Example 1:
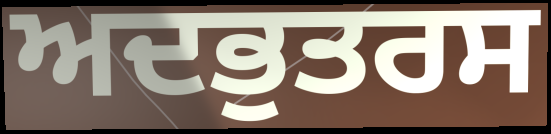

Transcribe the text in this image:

ਅਦਭੁਤਰਸ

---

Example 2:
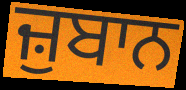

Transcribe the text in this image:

ਜ਼ੁਬਾਨ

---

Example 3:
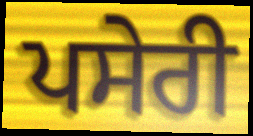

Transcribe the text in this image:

ਪਸੇਰੀ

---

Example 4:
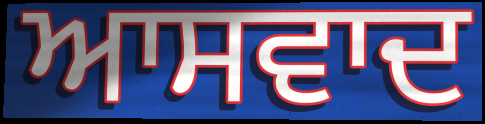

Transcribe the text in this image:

ਆਸਵਾਦ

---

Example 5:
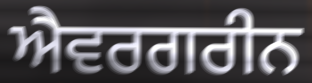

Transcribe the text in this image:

ਐਵਰਗਰੀਨ